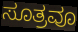
ಸೂತ್ರವೂ